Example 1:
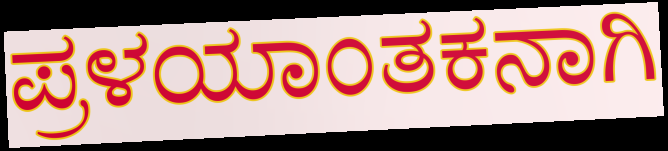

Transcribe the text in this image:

ಪ್ರಳಯಾಂತಕನಾಗಿ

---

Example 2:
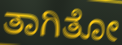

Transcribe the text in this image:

ತಾಗಿತೋ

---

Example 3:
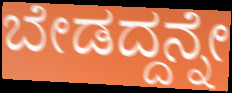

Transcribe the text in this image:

ಬೇಡದ್ದನ್ನೇ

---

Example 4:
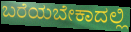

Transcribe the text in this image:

ಬರೆಯಬೇಕಾದಲ್ಲಿ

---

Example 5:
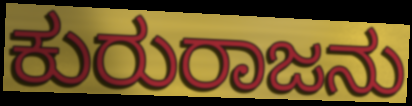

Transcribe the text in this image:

ಕುರುರಾಜನು